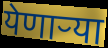
येणाऱ्या